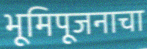
भूमिपूजनाचा